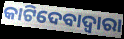
କାଟିଦେବାଦ୍ଵାରା